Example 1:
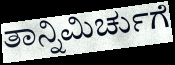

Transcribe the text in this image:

ತಾನ್ನಿಮಿರ್ಚುಗೆ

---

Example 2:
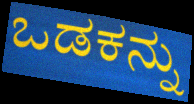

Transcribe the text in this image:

ಒಡಕನ್ನು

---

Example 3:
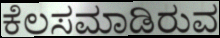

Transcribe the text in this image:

ಕೆಲಸಮಾಡಿರುವ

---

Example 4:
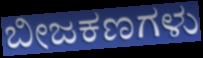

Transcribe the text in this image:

ಬೀಜಕಣಗಳು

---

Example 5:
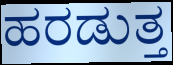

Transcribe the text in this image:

ಹರಡುತ್ತ